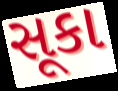
સૂકા